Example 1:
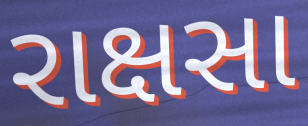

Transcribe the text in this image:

રાક્ષસા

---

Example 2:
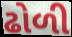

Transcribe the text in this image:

ઢોળી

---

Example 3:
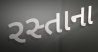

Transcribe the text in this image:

રસ્તાના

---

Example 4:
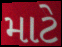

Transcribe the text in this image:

માટે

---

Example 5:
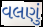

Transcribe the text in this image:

વલણું